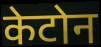
केटोन